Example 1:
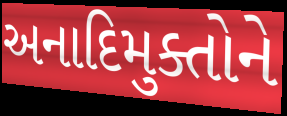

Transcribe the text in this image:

અનાદિમુક્તોને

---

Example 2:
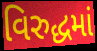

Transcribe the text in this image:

વિરુદ્ધમાં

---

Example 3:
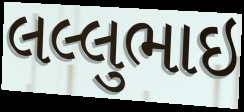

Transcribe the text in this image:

લલ્લુભાઇ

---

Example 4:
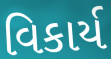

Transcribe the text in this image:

વિકાર્ય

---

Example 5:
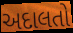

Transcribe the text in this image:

અદાલતો